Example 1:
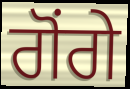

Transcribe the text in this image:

ਗੋਂਗੇ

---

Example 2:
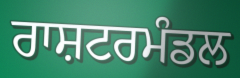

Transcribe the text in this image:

ਰਾਸ਼ਟਰਮੰਡਲ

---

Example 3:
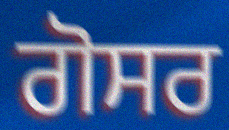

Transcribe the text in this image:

ਗੋਸਰ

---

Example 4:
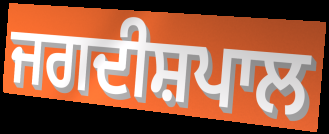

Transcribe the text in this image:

ਜਗਦੀਸ਼ਪਾਲ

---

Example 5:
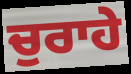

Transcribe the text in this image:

ਚੁਰਾਹੇ